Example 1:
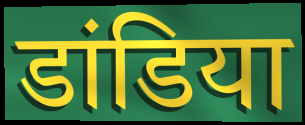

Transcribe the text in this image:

डांडिया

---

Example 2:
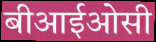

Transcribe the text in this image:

बीआईओसी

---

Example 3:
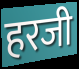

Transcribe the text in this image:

हरजी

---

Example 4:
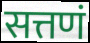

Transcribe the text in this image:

सत्तणं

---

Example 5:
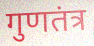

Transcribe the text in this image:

गुणतंत्र